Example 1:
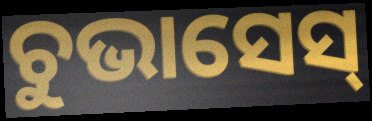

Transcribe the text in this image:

ଚୁଭାସେସ୍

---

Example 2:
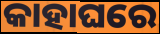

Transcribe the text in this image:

କାହାଘରେ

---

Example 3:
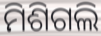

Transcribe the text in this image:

ମିଶିଗଲି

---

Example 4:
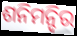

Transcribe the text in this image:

ଶନିମନ୍ଦିର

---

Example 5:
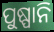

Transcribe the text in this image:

ପୁଷ୍ପାନି